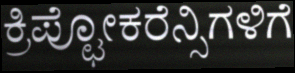
ಕ್ರಿಪ್ಟೋಕರೆನ್ಸಿಗಳಿಗೆ